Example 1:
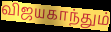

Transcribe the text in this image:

விஜயகாந்தும்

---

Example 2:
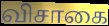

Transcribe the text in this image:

விசாகை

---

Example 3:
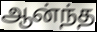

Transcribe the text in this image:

ஆன்ந்த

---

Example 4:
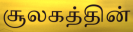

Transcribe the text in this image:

சூலகத்தின்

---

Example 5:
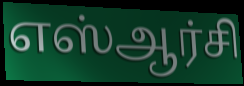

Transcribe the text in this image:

எஸ்ஆர்சி